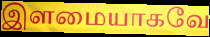
இளமையாகவே